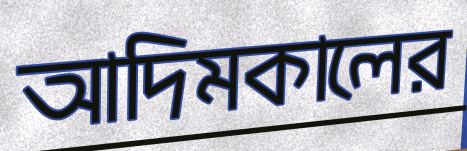
আদিমকালের